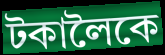
টকালৈকে